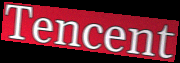
Tencent